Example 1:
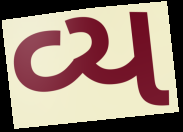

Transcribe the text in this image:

વ્ય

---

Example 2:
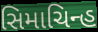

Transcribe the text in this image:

સિમાચિન્હ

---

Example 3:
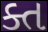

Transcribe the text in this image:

ક્ત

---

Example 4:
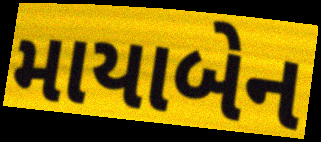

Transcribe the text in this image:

માયાબેન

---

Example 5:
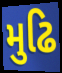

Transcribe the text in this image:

મુઢિ